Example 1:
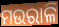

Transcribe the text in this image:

ମଉରାଳି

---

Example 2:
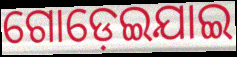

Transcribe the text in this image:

ଗୋଡ଼େଇଯାଇ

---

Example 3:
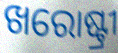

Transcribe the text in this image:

ଖରୋଷ୍ଟ୍ରୀ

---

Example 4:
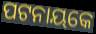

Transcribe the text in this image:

ପଟନାୟକେ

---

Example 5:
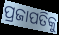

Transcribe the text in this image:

ପ୍ରଜାପତିକୁ